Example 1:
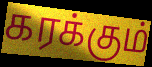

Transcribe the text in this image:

கரக்கும்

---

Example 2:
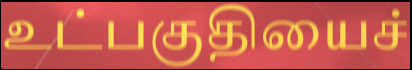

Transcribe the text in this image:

உட்பகுதியைச்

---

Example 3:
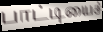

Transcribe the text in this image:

பாட்டியைச்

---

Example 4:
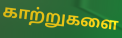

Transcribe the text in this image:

காற்றுகளை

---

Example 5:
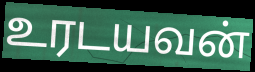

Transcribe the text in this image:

உரடயவன்